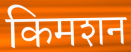
किमशन